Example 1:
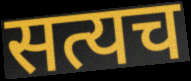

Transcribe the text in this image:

सत्यच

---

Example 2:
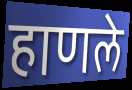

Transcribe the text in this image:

हाणले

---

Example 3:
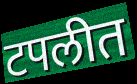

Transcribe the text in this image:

टपलीत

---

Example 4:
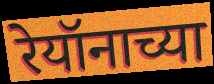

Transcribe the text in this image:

रेयॉनाच्या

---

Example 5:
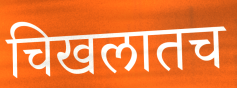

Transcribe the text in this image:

चिखलातच